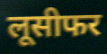
लूसीफर